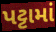
પટ્ટામાં